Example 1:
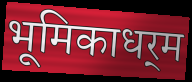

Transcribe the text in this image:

भूमिकाधर्म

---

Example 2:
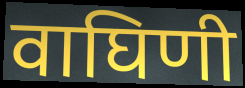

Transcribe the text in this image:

वाघिणी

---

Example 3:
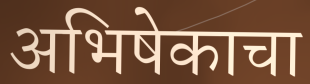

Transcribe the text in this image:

अभिषेकाचा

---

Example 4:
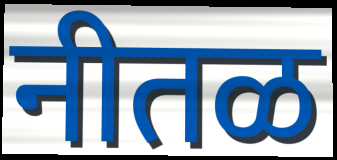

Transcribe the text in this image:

नीतळ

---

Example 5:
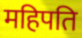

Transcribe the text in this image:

महिपति